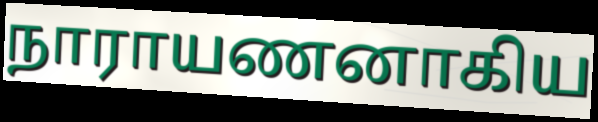
நாராயணனாகிய